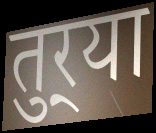
तुर्या